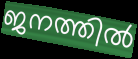
ജനത്തിൽ